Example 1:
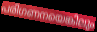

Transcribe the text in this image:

പരിഗണനയെങ്കിലും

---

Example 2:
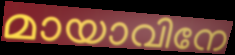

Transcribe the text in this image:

മായാവിനേ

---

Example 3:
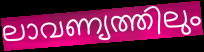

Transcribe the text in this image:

ലാവണ്യത്തിലും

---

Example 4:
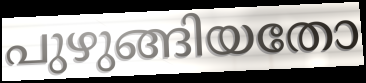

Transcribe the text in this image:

പുഴുങ്ങിയതോ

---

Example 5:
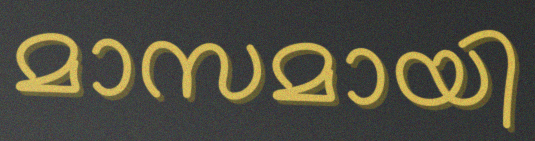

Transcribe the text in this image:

മാസമായി